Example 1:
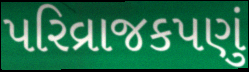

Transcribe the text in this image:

પરિવ્રાજકપણું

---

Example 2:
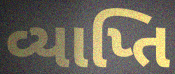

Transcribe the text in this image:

વ્યાપ્તિ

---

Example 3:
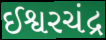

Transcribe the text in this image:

ઈશ્વરચંદ્ર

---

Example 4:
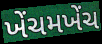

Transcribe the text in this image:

ખેંચમખેંચ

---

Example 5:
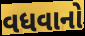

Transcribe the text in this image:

વધવાનો